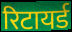
रिटायर्ड